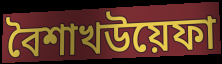
বৈশাখউয়েফা